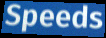
Speeds